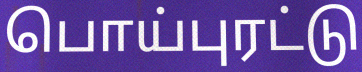
பொய்புரட்டு